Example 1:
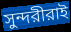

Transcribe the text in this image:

সুন্দরীরাই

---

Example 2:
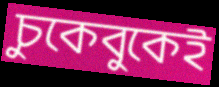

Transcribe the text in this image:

চুকেবুকেই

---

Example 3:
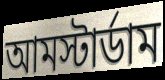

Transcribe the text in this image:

আমস্টার্ডাম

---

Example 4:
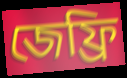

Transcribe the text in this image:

জেফ্রি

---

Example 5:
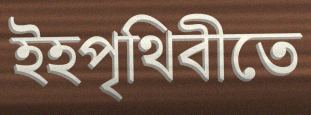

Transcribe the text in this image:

ইহপৃথিবীতে